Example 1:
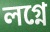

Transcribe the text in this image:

লগ্নে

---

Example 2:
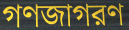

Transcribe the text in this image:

গণজাগরণ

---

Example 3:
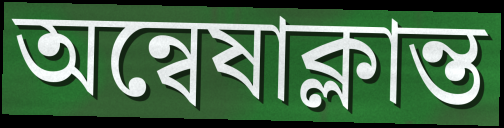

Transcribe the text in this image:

অন্বেষাক্লান্ত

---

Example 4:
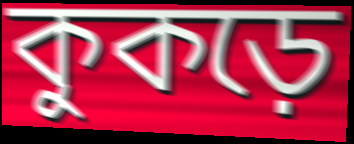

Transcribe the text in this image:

কুকড়ে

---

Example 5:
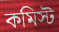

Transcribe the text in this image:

কমিস্ট